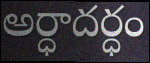
అర్ధాదర్ధం